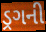
ડ્રગની